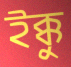
ইক্কু